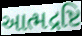
આત્મદ્રષ્ટિ